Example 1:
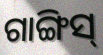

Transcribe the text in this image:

ଗାଙ୍ଗିସ୍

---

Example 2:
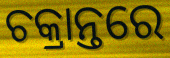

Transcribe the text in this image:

ଚକ୍ରାନ୍ତରେ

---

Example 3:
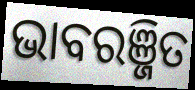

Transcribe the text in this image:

ଭାବରଞ୍ଜିତ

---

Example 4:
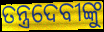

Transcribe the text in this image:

ତନ୍ତ୍ରଦେବୀଙ୍କୁ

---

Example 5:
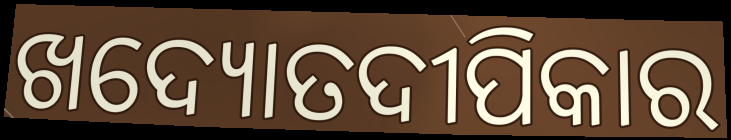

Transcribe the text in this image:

ଖଦ୍ୟୋତଦୀପିକାର